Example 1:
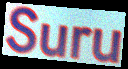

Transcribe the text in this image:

Suru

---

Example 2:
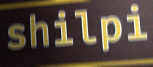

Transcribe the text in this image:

shilpi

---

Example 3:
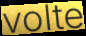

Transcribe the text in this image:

volte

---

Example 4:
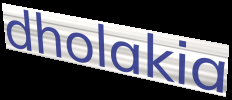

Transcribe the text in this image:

dholakia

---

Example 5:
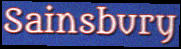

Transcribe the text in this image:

Sainsbury